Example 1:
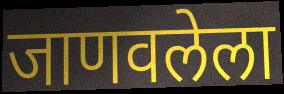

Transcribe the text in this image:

जाणवलेला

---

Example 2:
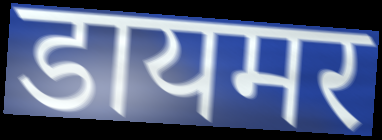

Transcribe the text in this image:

डायमर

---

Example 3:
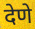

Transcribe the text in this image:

देणे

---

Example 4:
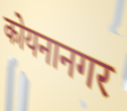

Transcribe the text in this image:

कोयनानगर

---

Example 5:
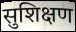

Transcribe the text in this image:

सुशिक्षण